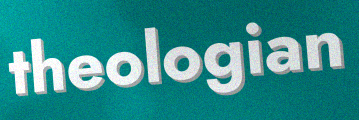
theologian